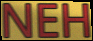
NEH